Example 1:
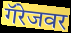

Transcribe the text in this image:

गॅरेजवर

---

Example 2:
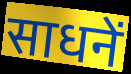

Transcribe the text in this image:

साधनें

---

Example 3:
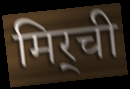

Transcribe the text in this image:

मिर्ची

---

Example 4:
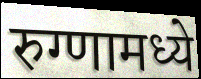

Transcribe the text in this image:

रुग्णामध्ये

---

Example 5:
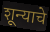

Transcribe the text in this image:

शून्याचे